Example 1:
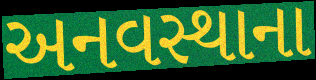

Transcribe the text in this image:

અનવસ્થાના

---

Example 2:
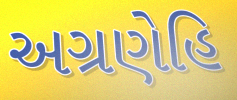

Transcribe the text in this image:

અગ્રણેહિ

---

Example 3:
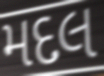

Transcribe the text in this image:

મદલ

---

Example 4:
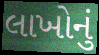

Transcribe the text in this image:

લાખોનું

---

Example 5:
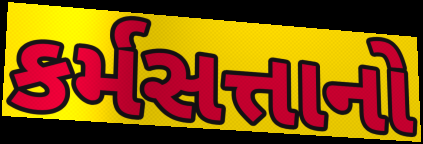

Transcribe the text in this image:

કર્મસત્તાનો